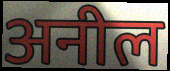
अनील